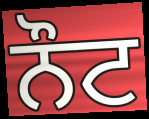
ਨੌਟ